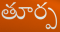
తూర్ప